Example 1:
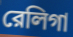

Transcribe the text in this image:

রেলিগা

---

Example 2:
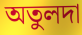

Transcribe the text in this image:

অতুলদা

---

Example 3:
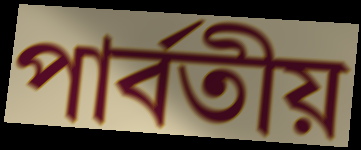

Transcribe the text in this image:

পার্বতীয়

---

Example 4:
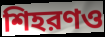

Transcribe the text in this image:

শিহরণও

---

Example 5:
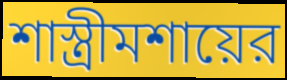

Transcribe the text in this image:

শাস্ত্রীমশায়ের